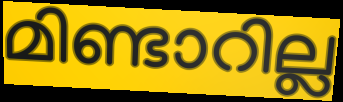
മിണ്ടാറില്ല